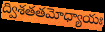
ద్విశతతమోధ్యాయః